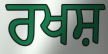
ਰਖਸ਼